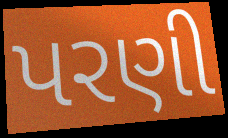
પરણી